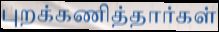
புறக்கணித்தார்கள்